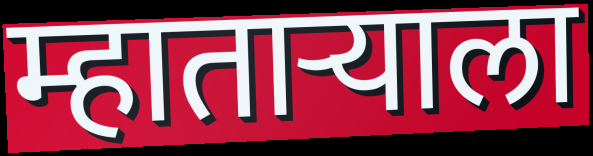
म्हाताऱ्याला